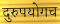
दुरुपयोगच